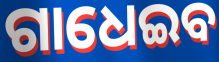
ଗାଧେଇବ